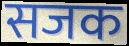
सजक